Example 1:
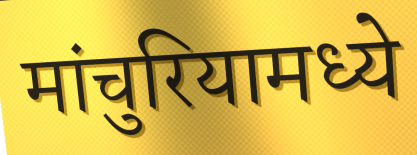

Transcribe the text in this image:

मांचुरियामध्ये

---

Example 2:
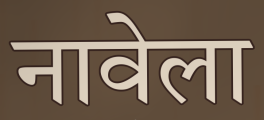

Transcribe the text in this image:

नावेला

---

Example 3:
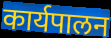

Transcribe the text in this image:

कार्यपालन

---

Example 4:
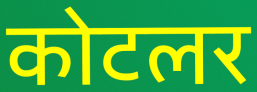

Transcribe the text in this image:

कोटलर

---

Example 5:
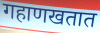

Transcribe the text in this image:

गहाणखतात